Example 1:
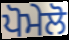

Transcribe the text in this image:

ਪੋਮੇਲੋ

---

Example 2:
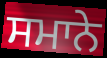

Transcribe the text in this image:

ਸਮਾਨੇ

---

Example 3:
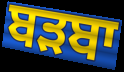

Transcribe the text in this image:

ਬੜਬਾ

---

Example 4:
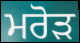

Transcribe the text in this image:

ਮਰੋੜ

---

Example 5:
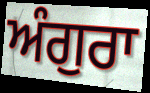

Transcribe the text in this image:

ਅੰਗੁਰਾ